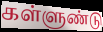
கள்ளுண்டு